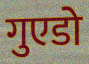
गुएडो